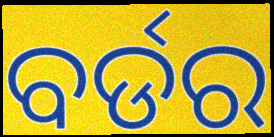
ବର୍ଡର